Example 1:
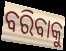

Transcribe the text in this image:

ବରିବାକୁ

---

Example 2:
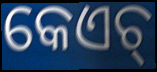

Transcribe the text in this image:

କେଏଚ୍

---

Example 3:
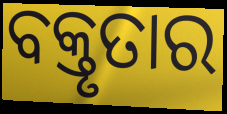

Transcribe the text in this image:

ବକ୍ତୃତାର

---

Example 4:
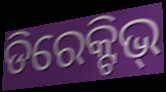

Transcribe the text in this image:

ଡିରେକ୍ଟିଭ୍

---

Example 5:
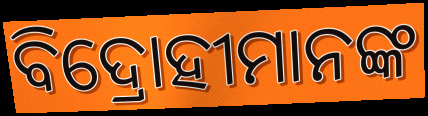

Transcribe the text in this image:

ବିଦ୍ରୋହୀମାନଙ୍କ